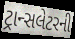
ટ્રાન્સલેટરની